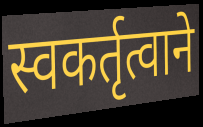
स्वकर्तृत्वाने